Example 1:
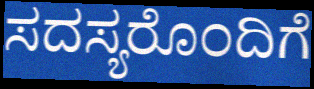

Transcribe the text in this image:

ಸದಸ್ಯರೊಂದಿಗೆ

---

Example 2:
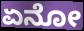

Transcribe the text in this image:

ಏನೋ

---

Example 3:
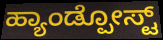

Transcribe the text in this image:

ಹ್ಯಾಂಡ್ಪೋಸ್ಟ್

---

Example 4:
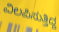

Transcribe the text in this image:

ವಿಲಪಿಸುತ್ತಿದ್ದ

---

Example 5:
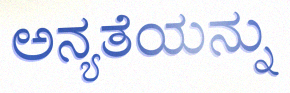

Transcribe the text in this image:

ಅನ್ಯತೆಯನ್ನು